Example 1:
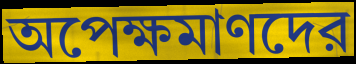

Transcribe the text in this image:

অপেক্ষমাণদের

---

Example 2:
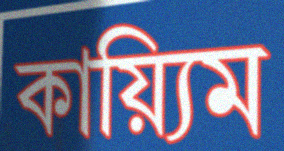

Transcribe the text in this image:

কায়্যিম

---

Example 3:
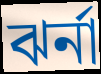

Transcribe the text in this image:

ঝর্না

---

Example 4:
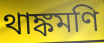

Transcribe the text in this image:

থাঙ্কমণি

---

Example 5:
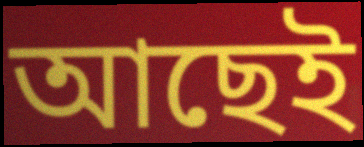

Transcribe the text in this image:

আছেই